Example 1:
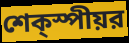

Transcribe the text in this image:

শেক্স্পীয়র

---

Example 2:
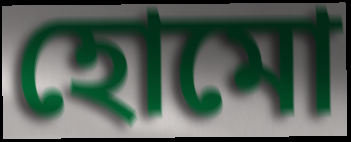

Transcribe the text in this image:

হোমো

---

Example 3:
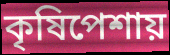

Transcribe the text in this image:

কৃষিপেশায়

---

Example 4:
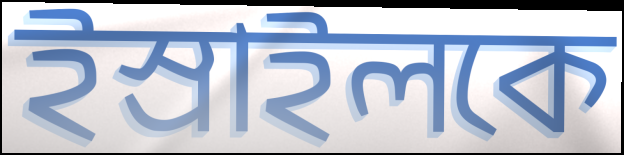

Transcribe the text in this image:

ইস্রাইলকে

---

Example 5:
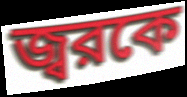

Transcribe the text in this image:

জ্বরকে